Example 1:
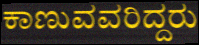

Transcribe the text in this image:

ಕಾಣುವವರಿದ್ದರು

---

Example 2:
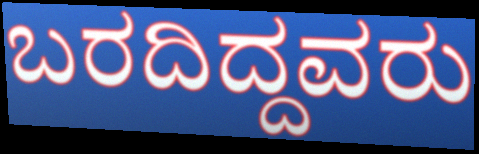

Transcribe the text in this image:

ಬರದಿದ್ದವರು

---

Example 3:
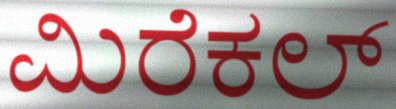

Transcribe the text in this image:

ಮಿರೆಕಲ್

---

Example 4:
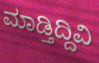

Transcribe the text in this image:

ಮಾಡ್ತಿದ್ದಿವಿ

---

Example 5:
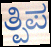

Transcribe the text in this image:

ತ್ಪಿಪ